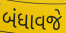
બંધાવજે